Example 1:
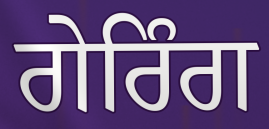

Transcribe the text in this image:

ਗੇਰਿੰਗ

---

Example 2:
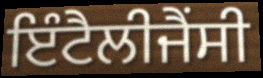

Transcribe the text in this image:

ਇੰਟੈਲੀਜੈਂਸੀ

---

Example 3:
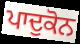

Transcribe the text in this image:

ਪਾਦੁਕੋਨ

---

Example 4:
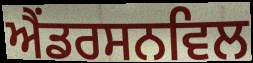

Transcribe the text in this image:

ਐਂਡਰਸਨਵਿਲ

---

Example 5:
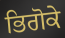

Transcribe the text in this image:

ਭਿਗੋਕੇ